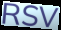
RSV